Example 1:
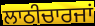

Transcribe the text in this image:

ਲਾਠੀਚਾਰਜਾਂ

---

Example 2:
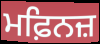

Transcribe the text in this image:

ਮਫ਼ਿਨਜ਼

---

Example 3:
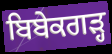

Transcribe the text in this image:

ਬਿਬੇਕਗੜ੍ਹ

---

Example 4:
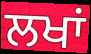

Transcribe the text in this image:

ਲਖਾਂ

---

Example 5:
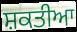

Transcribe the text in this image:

ਸ਼ਕਤੀਆ